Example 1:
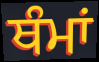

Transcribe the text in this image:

ਥੰਮਾਂ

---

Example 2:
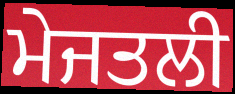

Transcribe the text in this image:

ਮੇਜਤਲੀ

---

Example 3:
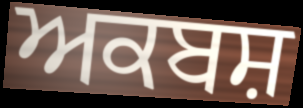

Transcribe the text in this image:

ਅਕਬਸ਼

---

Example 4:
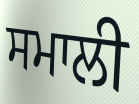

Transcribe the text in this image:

ਸਮਾਲੀ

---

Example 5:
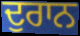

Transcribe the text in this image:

ਦੁਰਾਨ